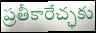
ప్రతీకారేచ్ఛకు